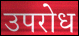
उपरोध